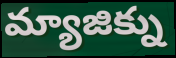
మ్యాజిక్ను